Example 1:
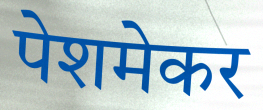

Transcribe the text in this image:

पेशमेकर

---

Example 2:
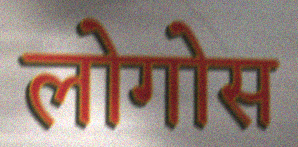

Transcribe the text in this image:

लोगोस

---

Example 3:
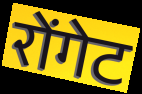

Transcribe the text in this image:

रोंगेट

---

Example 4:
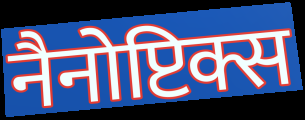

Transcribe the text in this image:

नैनोप्टिक्स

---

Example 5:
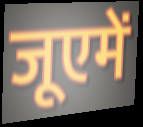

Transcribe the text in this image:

जूएमें